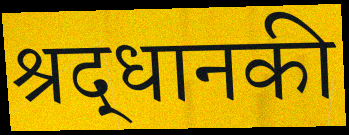
श्रद्धानकी